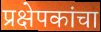
प्रक्षेपकांचा